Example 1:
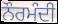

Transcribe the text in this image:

ਨੌਰਮੰਦੀ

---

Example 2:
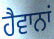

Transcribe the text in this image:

ਹੈਵਾਨਾਂ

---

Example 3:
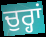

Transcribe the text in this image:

ਚੁਰ੍ਹਾਂ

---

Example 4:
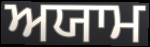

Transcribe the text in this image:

ਅਯਾਮ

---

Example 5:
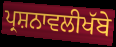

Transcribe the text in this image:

ਪ੍ਰਸ਼ਨਾਵਲੀਖੱਬੇ